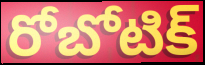
రోబోటిక్